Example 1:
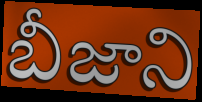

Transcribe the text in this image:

బీజాని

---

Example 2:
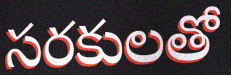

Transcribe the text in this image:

సరకులతో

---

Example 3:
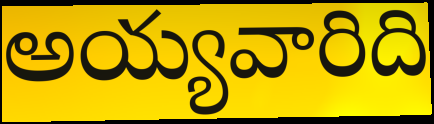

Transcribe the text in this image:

అయ్యవారిది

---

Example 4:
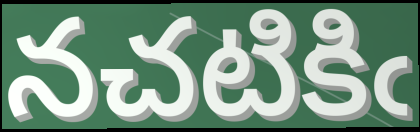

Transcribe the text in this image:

నచటికిఁ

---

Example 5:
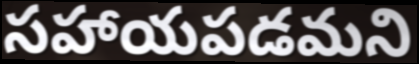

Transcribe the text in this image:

సహాయపడమని